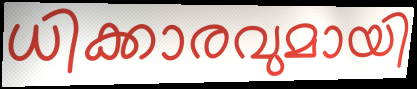
ധിക്കാരവുമായി